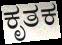
ಕೃತಕ